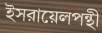
ইসরায়েলপন্থী